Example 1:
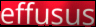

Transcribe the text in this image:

effusus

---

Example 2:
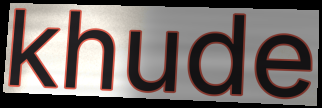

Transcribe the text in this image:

khude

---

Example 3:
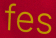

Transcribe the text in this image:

fes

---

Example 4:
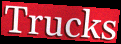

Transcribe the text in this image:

Trucks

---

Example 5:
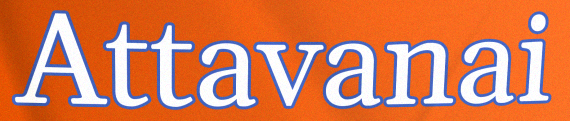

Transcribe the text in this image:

Attavanai